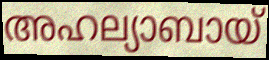
അഹല്യാബായ്